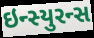
ઇન્સ્યુરન્સ